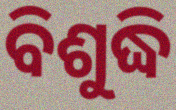
ବିଶୁଦ୍ଧି